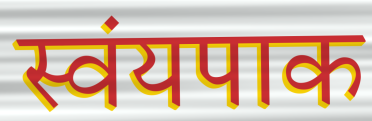
स्वंयपाक